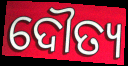
ଦୌତ୍ୟ